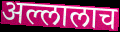
अल्लालाच